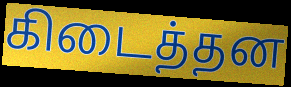
கிடைத்தன